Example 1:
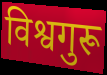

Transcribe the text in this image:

विश्वगुरू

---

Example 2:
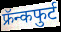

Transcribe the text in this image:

फ्रॅन्कफुर्ट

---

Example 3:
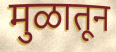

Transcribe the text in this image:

मुळातून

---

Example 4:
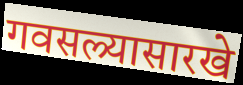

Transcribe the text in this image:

गवसल्यासारखे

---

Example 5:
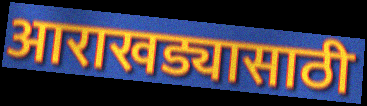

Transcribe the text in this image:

आराखड्यासाठी